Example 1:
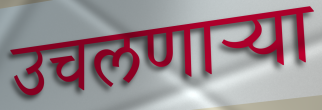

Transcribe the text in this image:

उचलणाऱ्या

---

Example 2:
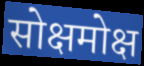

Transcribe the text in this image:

सोक्षमोक्ष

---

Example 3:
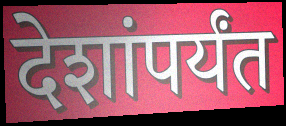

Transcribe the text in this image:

देशांपर्यंत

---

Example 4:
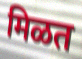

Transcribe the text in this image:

मिळत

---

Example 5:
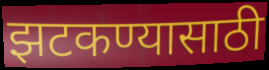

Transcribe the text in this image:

झटकण्यासाठी